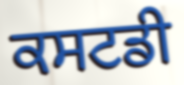
ਕਸਟਡੀ